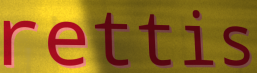
rettis